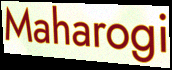
Maharogi